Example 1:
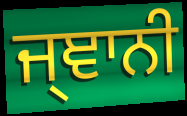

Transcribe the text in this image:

ਜ੍ਞਾਨੀ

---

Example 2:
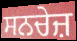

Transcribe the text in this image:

ਸਨਚੇਜ਼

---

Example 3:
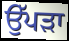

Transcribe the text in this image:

ਉੱਪੜਾ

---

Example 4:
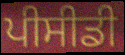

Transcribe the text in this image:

ਪੀਸੀਡੀ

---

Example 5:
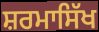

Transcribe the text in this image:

ਸ਼ਰਮਾਸਿੱਖ